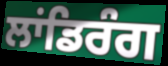
ਲਾਂਡਿਰੰਗ